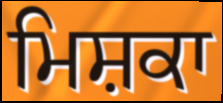
ਮਿਸ਼ਕਾ